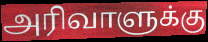
அரிவாளுக்கு